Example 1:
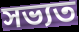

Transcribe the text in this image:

সভ্যত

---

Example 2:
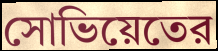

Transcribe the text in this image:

সোভিয়েতের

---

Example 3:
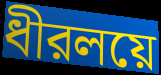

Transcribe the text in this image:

ধীরলয়ে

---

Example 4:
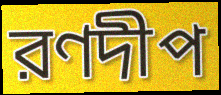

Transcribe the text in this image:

রণদীপ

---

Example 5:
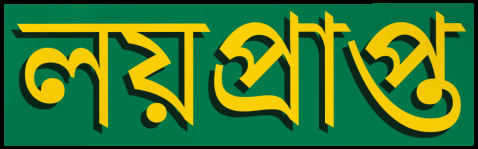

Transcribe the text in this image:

লয়প্রাপ্ত